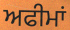
ਅਫੀਮਾਂ